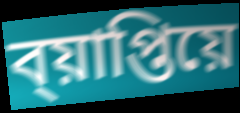
ব্য়াপ্তিয়ে